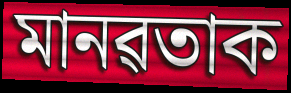
মানৱতাক